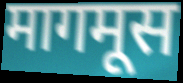
मागमूस